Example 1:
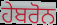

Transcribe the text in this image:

ਹੇਬਰੋਨ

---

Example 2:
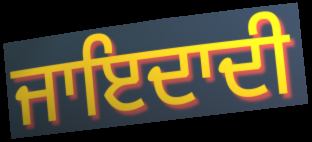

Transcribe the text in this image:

ਜਾਇਦਾਦੀ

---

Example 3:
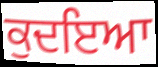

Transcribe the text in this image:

ਕੁਦਇਆ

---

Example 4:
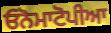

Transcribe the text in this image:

ਓਨੋਮਾਟੋਪੀਆ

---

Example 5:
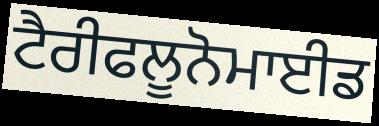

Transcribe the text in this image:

ਟੈਰੀਫਲੂਨੋਮਾਈਡ